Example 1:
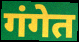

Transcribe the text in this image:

गंगेत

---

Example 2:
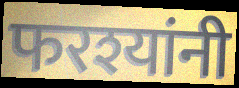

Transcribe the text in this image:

फरश्यांनी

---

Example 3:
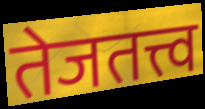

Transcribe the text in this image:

तेजतत्त्व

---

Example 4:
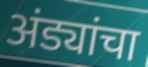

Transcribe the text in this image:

अंड्यांचा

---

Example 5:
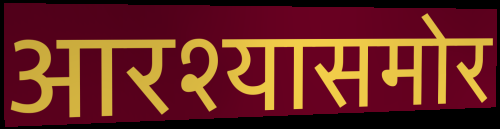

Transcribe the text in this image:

आरश्यासमोर